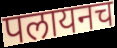
पलायनच